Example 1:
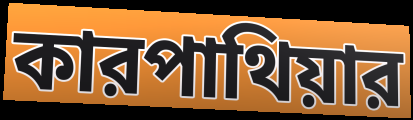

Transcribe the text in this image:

কারপাথিয়ার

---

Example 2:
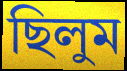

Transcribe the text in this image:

ছিলুম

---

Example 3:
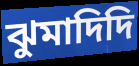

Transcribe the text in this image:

ঝুমাদিদি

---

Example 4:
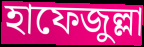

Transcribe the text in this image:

হাফেজুল্লা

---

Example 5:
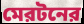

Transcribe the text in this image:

মেরটনের